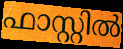
ഫാസ്റ്റിൽ